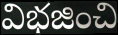
విభజించి